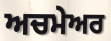
ਅਚਮੇਅਰ